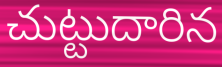
చుట్టుదారిన